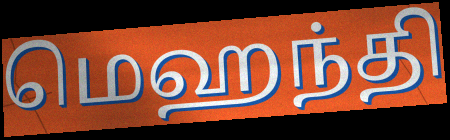
மெஹந்தி